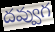
దవ్వుగ